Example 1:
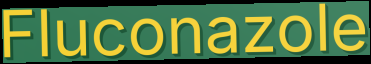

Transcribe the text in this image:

Fluconazole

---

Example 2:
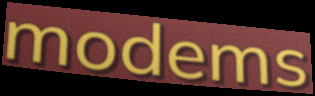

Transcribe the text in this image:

modems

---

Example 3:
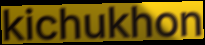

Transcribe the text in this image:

kichukhon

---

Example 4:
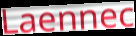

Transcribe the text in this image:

Laennec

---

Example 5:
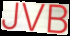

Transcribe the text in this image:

JVB